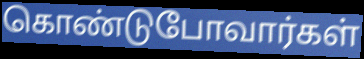
கொண்டுபோவார்கள்